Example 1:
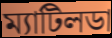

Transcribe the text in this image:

ম্যাটিলডা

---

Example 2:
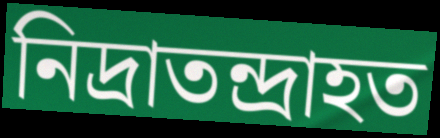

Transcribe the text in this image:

নিদ্রাতন্দ্রাহত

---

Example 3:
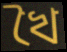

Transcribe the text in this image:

খৈ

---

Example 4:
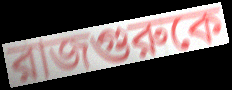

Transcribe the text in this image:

রাজগুরুকে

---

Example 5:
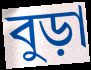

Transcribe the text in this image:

বুড়া